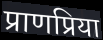
प्राणप्रिया